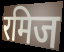
रमिज